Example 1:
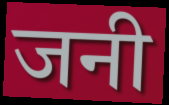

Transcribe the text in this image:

जनी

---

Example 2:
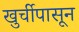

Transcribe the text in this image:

खुर्चीपासून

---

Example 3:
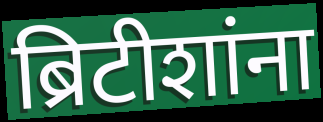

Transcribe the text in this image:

ब्रिटीशांना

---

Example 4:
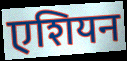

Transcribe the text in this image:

एशियन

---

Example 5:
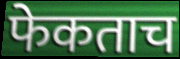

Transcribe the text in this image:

फेकताच